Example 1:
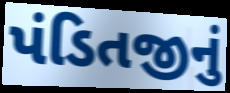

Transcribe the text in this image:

પંડિતજીનું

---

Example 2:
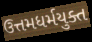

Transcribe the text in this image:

ઉત્તમધર્મયુક્ત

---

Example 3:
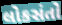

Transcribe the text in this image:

લોકસંતો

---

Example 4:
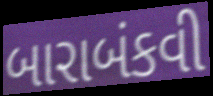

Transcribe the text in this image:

બારાબંકવી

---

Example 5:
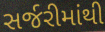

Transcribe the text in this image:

સર્જરીમાંથી